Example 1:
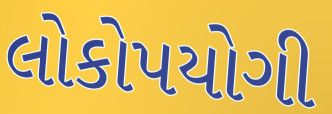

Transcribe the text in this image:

લોકોપયોગી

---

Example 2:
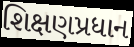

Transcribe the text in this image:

શિક્ષણપ્રધાન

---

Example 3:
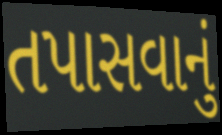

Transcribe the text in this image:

તપાસવાનું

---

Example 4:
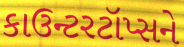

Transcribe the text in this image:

કાઉન્ટરટૉપ્સને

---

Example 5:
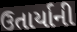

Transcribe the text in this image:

ઉતાર્યાની